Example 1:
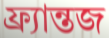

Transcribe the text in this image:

ফ্র্যান্তজ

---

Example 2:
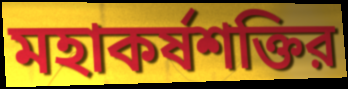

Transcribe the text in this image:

মহাকর্ষশক্তির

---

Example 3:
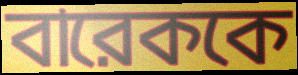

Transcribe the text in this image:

বারেককে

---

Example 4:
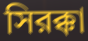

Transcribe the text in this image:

সিরক্কা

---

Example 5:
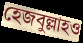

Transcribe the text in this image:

হেজবুল্লাহও